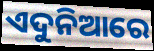
ଏଦୁନିଆରେ